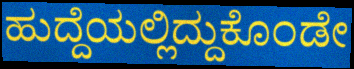
ಹುದ್ದೆಯಲ್ಲಿದ್ದುಕೊಂಡೇ